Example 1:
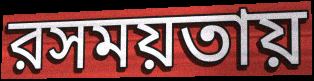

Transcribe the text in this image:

রসময়তায়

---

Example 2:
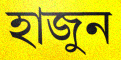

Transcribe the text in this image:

হাজুন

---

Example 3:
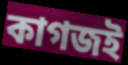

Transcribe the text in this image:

কাগজই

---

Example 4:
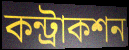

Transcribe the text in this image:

কন্ট্রাকশন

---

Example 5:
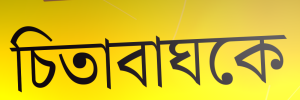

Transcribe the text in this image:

চিতাবাঘকে